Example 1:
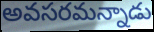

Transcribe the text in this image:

అవసరమన్నాడు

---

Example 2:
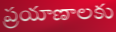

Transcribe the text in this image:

ప్రయాణాలకు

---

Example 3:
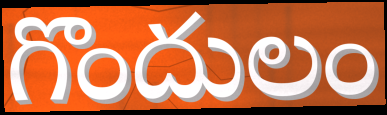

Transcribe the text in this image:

గొందులం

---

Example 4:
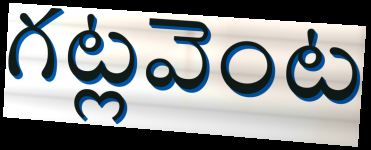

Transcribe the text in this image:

గట్లవెంట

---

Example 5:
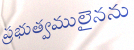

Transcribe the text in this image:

ప్రభుత్వములైనను